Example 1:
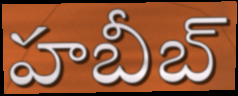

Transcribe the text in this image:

హబీబ్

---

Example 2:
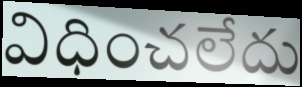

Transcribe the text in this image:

విధించలేదు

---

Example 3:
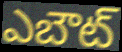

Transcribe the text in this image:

ఎబౌట్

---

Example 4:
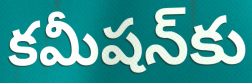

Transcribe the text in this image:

కమీషన్‌కు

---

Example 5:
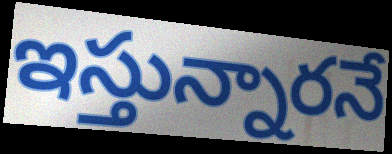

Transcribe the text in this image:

ఇస్తున్నారనే